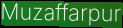
Muzaffarpur